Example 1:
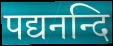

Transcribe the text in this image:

पद्यनन्दि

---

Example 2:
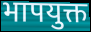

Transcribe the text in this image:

भापयुक्त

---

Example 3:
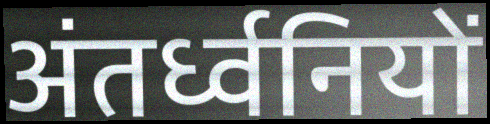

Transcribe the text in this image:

अंतर्ध्वनियों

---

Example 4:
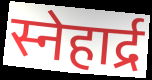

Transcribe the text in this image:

स्नेहार्द्र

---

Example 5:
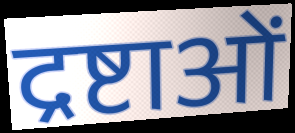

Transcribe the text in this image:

द्रष्टाओं